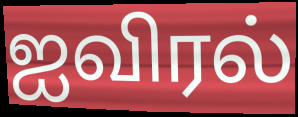
ஐவிரல்